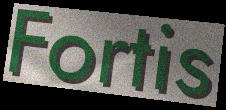
Fortis